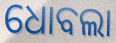
ଧୋବଲା